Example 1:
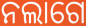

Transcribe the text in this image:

ନଲାଗେ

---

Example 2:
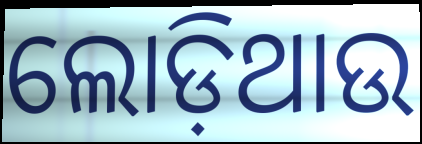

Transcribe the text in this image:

ଲୋଡ଼ିଥାଉ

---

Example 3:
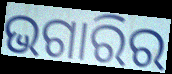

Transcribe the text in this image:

ଭଗାରିର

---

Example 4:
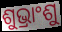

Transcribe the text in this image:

ଶୁଭ୍ରାଂଶୁ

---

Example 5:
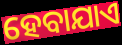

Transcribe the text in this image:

ହେବାଯାଏ